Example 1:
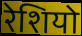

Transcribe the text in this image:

रेशियो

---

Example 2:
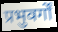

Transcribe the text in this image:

प्रभुवर्गों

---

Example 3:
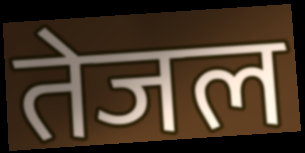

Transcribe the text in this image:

तेजल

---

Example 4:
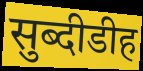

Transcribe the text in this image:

सुब्दीडीह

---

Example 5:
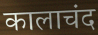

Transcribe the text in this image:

कालाचंद